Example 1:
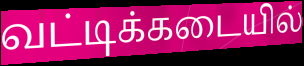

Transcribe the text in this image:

வட்டிக்கடையில்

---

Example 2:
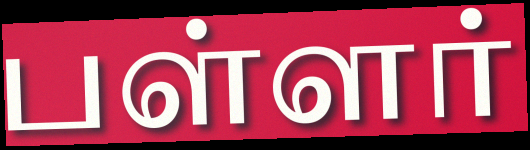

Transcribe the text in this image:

பள்ளர்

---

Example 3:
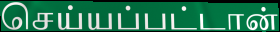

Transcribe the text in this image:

செய்யப்பட்டான்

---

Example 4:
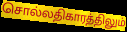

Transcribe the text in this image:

சொல்லதிகாரத்திலும்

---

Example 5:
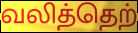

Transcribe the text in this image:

வலித்தெற்